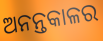
ଅନନ୍ତକାଳର